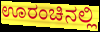
ಊರಂಚಿನಲ್ಲಿ